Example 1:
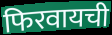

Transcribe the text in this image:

फिरवायची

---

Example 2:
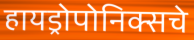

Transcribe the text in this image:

हायड्रोपोनिक्सचे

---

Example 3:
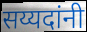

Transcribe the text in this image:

सय्यदांनी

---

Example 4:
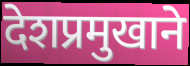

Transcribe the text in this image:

देशप्रमुखाने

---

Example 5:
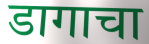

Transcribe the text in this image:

डागाचा